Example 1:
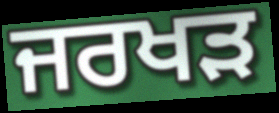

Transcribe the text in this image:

ਜਰਖੜ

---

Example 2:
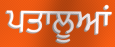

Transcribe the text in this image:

ਪਤਾਲੂਆਂ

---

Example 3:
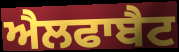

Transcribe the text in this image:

ਐਲਫਾਬੈਟ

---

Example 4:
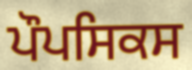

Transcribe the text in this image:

ਪੌਪਸਿਕਸ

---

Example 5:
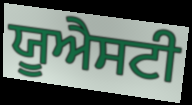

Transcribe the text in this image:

ਯੂਐਸਟੀ